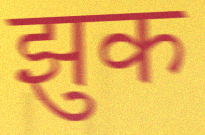
झुक